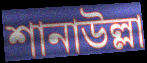
শানাউল্লা